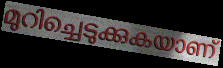
മുറിച്ചെടുക്കുകയാണ്